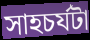
সাহচর্যটা